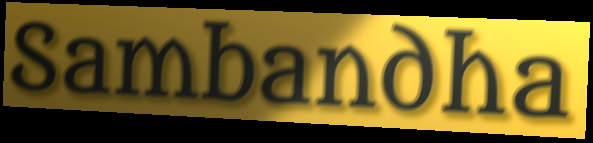
Sambandha